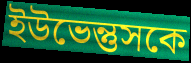
ইউভেন্তুসকে